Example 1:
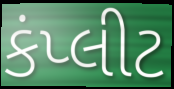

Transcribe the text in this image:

કંપ્લીટ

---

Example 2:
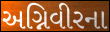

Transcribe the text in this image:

અગ્નિવીરના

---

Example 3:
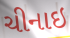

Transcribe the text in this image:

ચીનાઇ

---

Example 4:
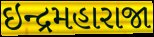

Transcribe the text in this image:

ઇન્દ્રમહારાજા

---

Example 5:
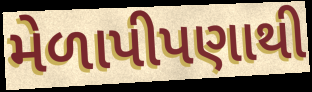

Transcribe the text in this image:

મેળાપીપણાથી